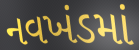
નવખંડમાં